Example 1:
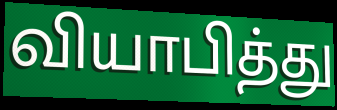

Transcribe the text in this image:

வியாபித்து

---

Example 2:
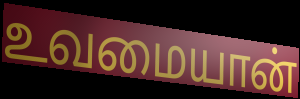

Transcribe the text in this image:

உவமையான்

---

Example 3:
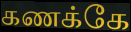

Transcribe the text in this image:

கணக்கே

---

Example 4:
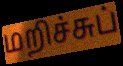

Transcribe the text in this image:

மறிச்சுப்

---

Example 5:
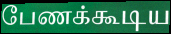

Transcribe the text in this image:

பேணக்கூடிய